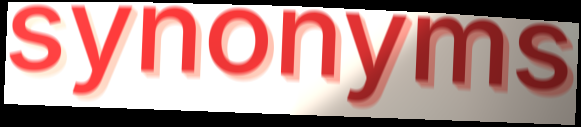
synonyms